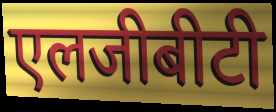
एलजीबीटी